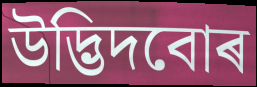
উদ্ভিদবোৰ